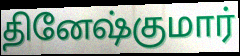
தினேஷ்குமார்